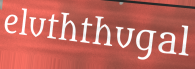
eluththugal